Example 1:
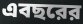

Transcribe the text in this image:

এবছরের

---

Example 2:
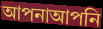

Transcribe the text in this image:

আপনাআপনি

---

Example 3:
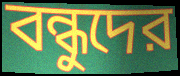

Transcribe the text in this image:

বন্ধুদের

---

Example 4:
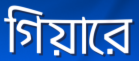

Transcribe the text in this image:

গিয়ারে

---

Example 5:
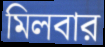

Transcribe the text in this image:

মিলবার